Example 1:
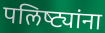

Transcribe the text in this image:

पलिष्ट्यांना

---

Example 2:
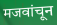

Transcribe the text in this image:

मजवांचून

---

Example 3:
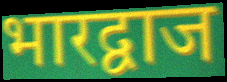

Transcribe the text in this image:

भारद्वाज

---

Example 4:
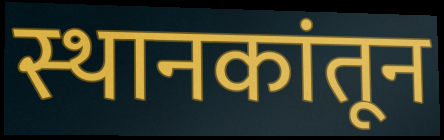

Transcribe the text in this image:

स्थानकांतून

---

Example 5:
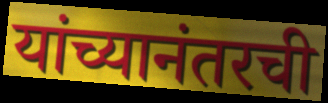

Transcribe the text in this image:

यांच्यानंतरची